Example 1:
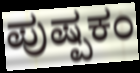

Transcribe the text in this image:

ಪುಷ್ಪಕಂ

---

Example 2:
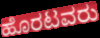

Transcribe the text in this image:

ಹೊರಟವರು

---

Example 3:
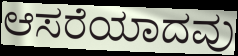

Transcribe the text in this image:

ಆಸರೆಯಾದವು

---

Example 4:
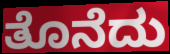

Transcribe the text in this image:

ತೊನೆದು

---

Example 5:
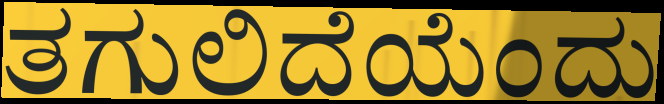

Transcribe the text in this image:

ತಗುಲಿದೆಯೆಂದು